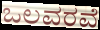
ಒಲವರವೆ